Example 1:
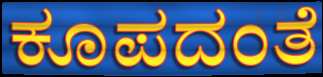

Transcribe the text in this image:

ಕೂಪದಂತೆ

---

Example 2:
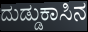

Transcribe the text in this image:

ದುಡ್ಡುಕಾಸಿನ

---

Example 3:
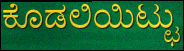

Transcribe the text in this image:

ಕೊಡಲಿಯಿಟ್ಟು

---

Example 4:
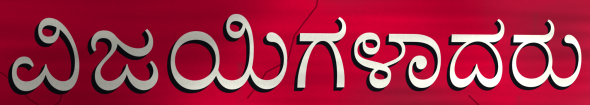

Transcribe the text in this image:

ವಿಜಯಿಗಳಾದರು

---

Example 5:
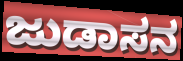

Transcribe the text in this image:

ಜುಡಾಸನ